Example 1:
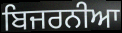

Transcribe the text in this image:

ਬਿਜਰਨੀਆ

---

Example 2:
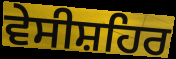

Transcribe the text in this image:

ਵੇਸੀਸ਼ਹਿਰ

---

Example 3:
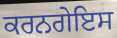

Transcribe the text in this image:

ਕਰਨਗੇਇਸ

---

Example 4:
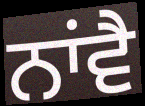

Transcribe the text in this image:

ਨਾਂਵੈ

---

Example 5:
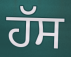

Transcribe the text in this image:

ਹੱਸ